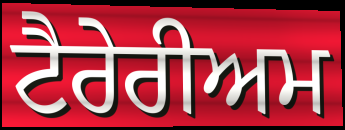
ਟੈਰੇਰੀਅਮ